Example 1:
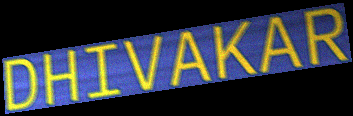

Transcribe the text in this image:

DHIVAKAR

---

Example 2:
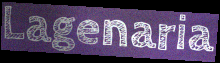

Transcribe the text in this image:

Lagenaria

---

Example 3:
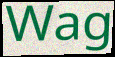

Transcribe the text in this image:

Wag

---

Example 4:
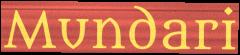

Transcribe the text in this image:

Mundari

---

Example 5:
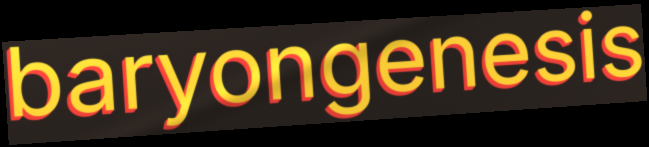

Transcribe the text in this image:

baryongenesis